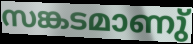
സങ്കടമാണു്